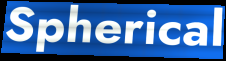
Spherical